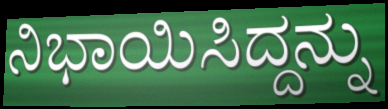
ನಿಭಾಯಿಸಿದ್ದನ್ನು